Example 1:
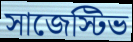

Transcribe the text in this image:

সাজেস্টিভ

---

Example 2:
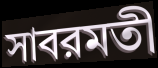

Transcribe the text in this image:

সাবরমতী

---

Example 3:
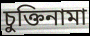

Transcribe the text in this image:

চুক্তিনামা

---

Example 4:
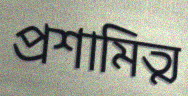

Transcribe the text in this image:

প্রশামিত্ম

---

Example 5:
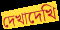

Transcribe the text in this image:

দেখাদেখি